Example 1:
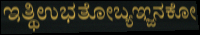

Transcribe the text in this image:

ಇತ್ಥಿಉಭತೋಬ್ಯಞ್ಜನಕೋ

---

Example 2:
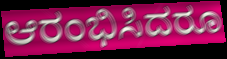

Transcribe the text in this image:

ಆರಂಭಿಸಿದರೂ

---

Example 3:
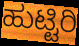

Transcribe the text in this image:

ಹುಟ್ಟಿರಿ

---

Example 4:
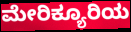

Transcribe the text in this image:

ಮೇರಿಕ್ಯೂರಿಯ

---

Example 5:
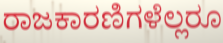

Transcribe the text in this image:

ರಾಜಕಾರಣಿಗಳೆಲ್ಲರೂ